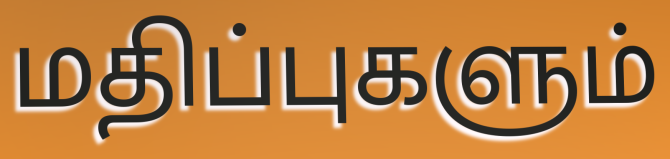
மதிப்புகளும்